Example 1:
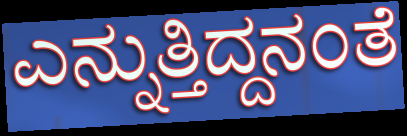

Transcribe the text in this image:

ಎನ್ನುತ್ತಿದ್ದನಂತೆ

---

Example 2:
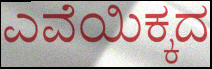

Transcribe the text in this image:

ಎವೆಯಿಕ್ಕದ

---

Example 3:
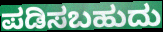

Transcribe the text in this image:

ಪಡಿಸಬಹುದು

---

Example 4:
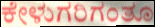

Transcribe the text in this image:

ಕೇಳುಗರಿಗಂತೂ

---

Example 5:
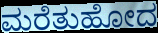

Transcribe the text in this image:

ಮರೆತುಹೋದ